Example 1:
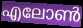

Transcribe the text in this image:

എലോൺ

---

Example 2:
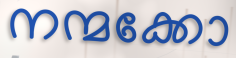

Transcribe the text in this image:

നന്മക്കോ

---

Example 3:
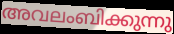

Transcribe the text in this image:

അവലംബിക്കുന്നു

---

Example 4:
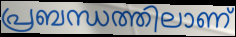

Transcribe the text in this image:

പ്രബന്ധത്തിലാണ്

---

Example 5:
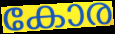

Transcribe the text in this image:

കോര